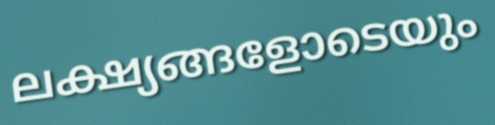
ലക്ഷ്യങ്ങളോടെയും